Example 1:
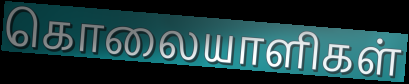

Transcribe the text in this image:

கொலையாளிகள்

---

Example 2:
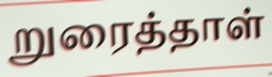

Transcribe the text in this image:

றுரைத்தாள்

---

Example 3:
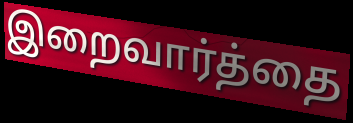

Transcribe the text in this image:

இறைவார்த்தை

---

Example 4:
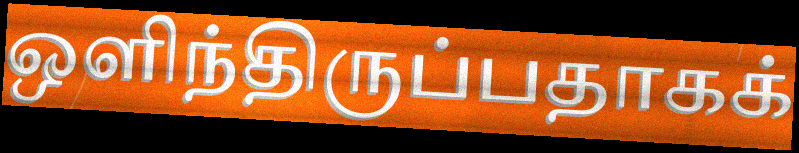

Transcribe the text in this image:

ஒளிந்திருப்பதாகக்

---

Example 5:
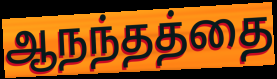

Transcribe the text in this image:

ஆநந்தத்தை